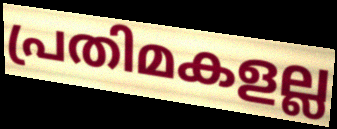
പ്രതിമകളല്ല